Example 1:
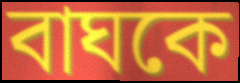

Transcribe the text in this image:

বাঘকে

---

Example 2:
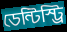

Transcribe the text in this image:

ডেন্টিস্ট্রি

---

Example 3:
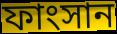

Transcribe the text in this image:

ফাংসান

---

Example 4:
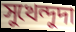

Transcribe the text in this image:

সুখেন্দুদা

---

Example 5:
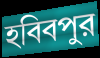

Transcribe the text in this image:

হবিবপুর